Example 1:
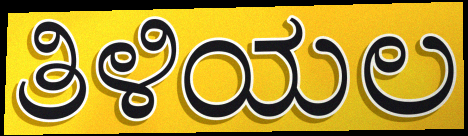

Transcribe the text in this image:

ತಿಳಿಯಲ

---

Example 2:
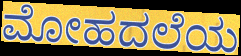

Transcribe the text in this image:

ಮೋಹದಲೆಯ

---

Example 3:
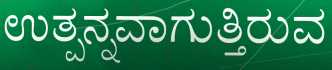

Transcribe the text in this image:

ಉತ್ಪನ್ನವಾಗುತ್ತಿರುವ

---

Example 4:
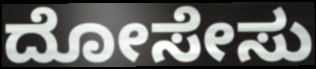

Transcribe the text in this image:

ದೋಸೇಸು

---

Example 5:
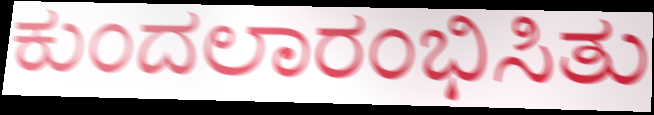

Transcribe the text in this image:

ಕುಂದಲಾರಂಭಿಸಿತು